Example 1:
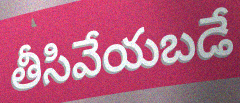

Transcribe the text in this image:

తీసివేయబడే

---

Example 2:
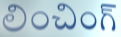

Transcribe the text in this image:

లించింగ్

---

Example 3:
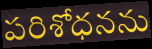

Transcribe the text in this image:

పరిశోధనను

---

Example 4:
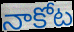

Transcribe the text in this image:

నాకోట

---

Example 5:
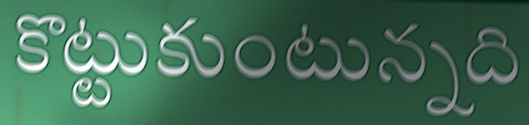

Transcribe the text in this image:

కొట్టుకుంటున్నది